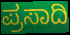
ಪ್ರಸಾದಿ